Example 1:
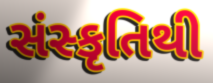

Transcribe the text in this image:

સંસ્કૃતિથી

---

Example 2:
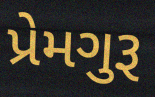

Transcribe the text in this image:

પ્રેમગુરૂ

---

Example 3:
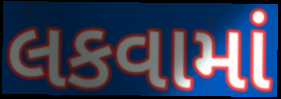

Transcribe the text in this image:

લકવામાં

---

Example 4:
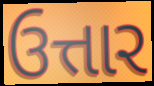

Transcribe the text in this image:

ઉત્તાર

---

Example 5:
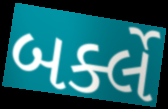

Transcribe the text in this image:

બર્ક્લે